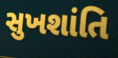
સુખશાંતિ